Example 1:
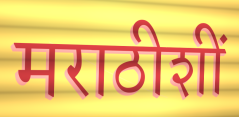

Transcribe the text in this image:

मराठीशीं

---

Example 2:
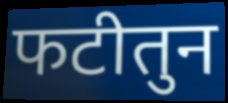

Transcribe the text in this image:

फटीतुन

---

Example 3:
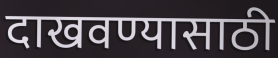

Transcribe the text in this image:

दाखवण्यासाठी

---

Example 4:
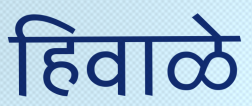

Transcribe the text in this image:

हिवाळे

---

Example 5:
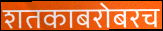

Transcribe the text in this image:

शतकाबरोबरच